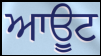
ਆਉੂਟ